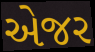
એજર